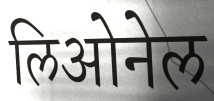
लिओनेल